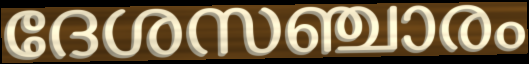
ദേശസഞ്ചാരം